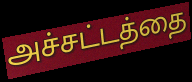
அச்சட்டத்தை